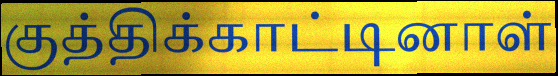
குத்திக்காட்டினாள்